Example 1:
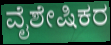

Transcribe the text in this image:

ವೈಶೇಷಿಕರ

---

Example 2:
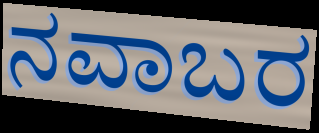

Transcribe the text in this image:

ನವಾಬರ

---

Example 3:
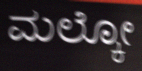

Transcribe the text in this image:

ಮಲ್ಕೋ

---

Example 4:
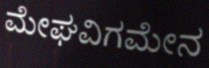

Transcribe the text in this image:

ಮೇಘವಿಗಮೇನ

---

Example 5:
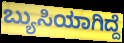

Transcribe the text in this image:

ಬ್ಯುಸಿಯಾಗಿದ್ದೆ